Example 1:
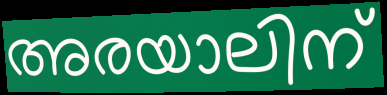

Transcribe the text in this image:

അരയാലിന്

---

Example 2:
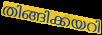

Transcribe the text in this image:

തിങ്ങിക്കയറി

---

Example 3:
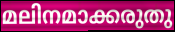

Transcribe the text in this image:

മലിനമാക്കരുതു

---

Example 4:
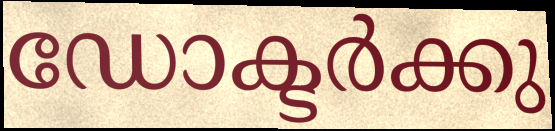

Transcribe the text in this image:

ഡോക്ടർക്കു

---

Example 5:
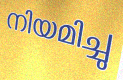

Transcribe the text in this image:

നിയമിച്ചു